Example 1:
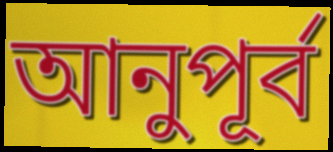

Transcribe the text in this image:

আনুপূর্ব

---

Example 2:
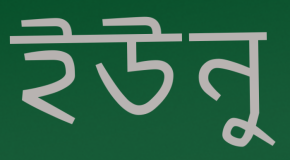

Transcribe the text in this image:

ইউনু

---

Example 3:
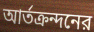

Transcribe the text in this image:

আর্তক্রন্দনের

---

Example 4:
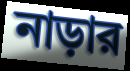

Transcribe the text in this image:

নাড়ার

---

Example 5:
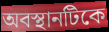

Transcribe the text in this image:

অবস্থানটিকে